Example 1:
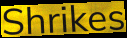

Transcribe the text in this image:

Shrikes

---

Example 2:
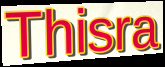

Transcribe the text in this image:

Thisra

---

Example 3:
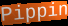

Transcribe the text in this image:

Pippin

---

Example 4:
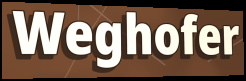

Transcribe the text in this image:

Weghofer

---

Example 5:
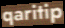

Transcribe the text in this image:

qaritip